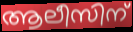
ആലീസിന്